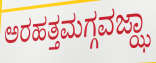
ಅರಹತ್ತಮಗ್ಗವಜ್ಝಾ